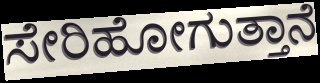
ಸೇರಿಹೋಗುತ್ತಾನೆ